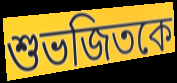
শুভজিতকে